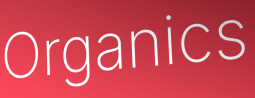
Organics